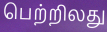
பெற்றிலது